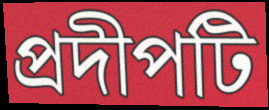
প্রদীপটি